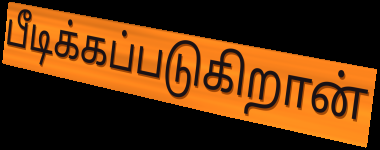
பீடிக்கப்படுகிறான்